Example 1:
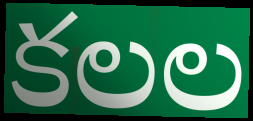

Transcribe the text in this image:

కలల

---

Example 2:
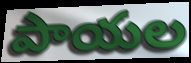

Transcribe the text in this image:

పాయల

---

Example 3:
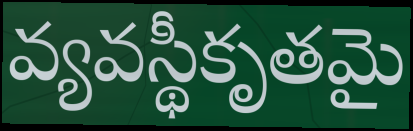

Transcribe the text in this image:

వ్యవస్థీకృతమై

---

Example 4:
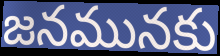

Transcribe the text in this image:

జనమునకు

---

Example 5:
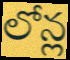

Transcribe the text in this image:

లోన్ల